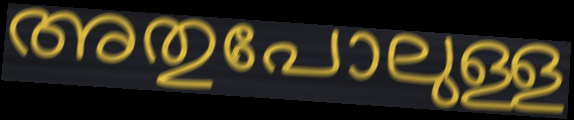
അതുപോലുള്ള